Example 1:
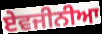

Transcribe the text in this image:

ਏਵਜੀਨੀਆ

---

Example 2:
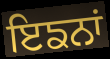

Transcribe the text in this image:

ਇਙਨਾਂ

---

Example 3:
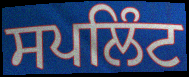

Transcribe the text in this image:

ਸਪਲਿੰਟ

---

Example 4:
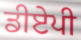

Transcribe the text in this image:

ਡੀਏਪੀ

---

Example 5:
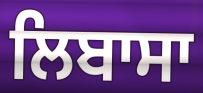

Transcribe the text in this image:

ਲਿਬਾਸਾ